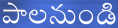
పాలనుండి